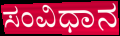
ಸಂವಿಧಾನ